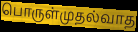
பொருள்முதல்வாத